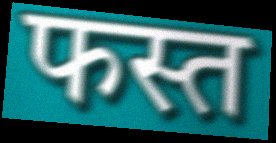
फस्त